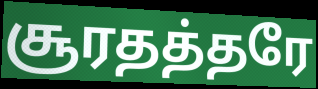
சூரதத்தரே